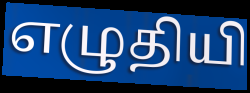
எழுதியி